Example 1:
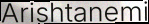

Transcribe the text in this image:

Arishtanemi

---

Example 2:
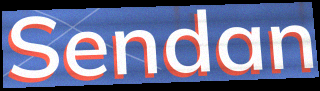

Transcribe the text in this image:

Sendan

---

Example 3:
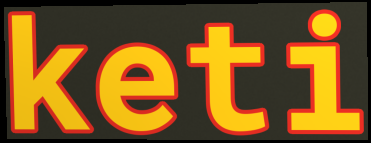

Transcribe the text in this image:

keti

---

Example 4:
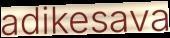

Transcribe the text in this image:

adikesava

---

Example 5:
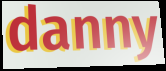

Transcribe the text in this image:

danny